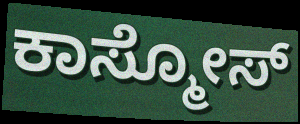
ಕಾಸ್ಮೋಸ್